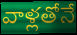
వాళ్లతోనే